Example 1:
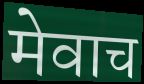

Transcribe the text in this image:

मेवाच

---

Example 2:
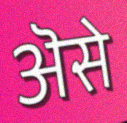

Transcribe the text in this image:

ऄसे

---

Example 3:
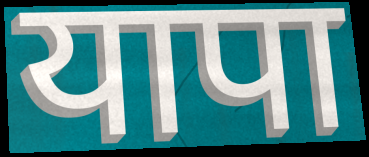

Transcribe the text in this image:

यापा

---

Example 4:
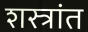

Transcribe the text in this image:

शस्त्रांत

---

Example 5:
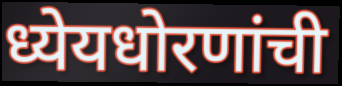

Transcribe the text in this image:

ध्येयधोरणांची